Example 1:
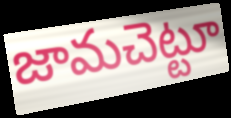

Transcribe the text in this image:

జామచెట్టూ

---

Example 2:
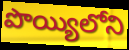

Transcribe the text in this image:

పొయ్యిలోని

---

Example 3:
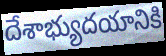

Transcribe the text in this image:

దేశాభ్యుదయానికి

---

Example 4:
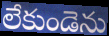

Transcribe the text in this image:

లేకుండెను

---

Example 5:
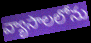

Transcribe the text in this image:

వ్యాసాలలోను